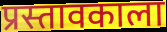
प्रस्तावकाला